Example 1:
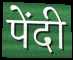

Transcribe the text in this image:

पेंदी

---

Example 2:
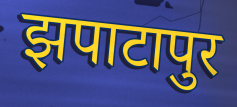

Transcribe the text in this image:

झपाटापुर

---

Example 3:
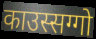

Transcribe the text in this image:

काउस्सग्गो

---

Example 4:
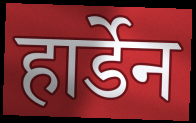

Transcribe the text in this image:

हार्डेन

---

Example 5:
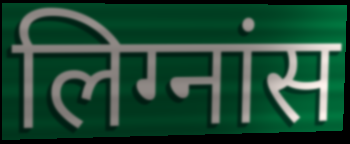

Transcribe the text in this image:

लिग्नांस